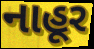
નાહૂર